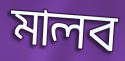
মালব